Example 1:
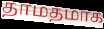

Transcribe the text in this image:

தாமதமாக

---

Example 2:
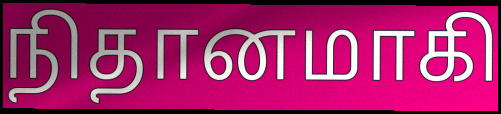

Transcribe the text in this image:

நிதானமாகி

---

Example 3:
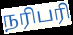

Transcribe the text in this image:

நரிபரி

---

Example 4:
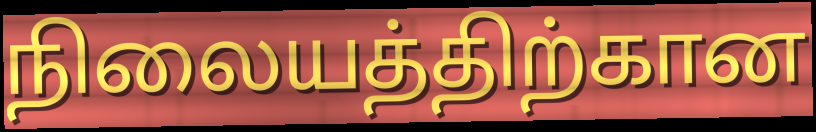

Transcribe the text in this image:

நிலையத்திற்கான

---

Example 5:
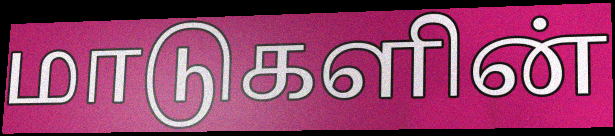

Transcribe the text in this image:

மாடுகளின்